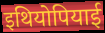
इथियोपियाई